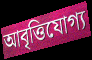
আবৃত্তিযোগ্য